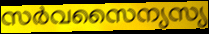
സർവസൈന്യസ്യ